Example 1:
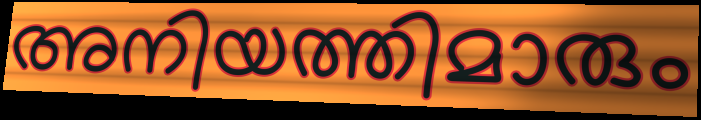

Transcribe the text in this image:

അനിയത്തിമാരും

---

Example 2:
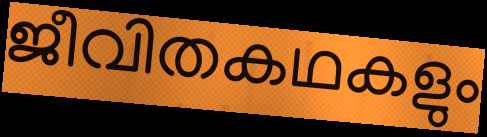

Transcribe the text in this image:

ജീവിതകഥകളും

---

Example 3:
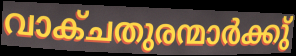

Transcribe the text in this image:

വാക്ചതുരന്മാർക്കു്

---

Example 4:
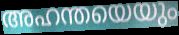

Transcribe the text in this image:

അഹന്തയെയും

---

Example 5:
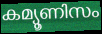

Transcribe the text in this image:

കമ്യൂണിസം